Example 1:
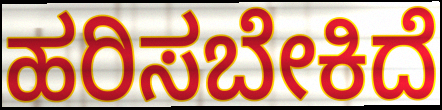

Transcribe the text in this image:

ಹರಿಸಬೇಕಿದೆ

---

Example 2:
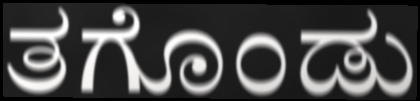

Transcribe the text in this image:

ತಗೊಂಡು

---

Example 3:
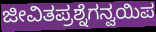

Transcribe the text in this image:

ಜೀವಿತಪ್ರಶ್ನೆಗನ್ವಯಿಪ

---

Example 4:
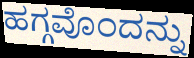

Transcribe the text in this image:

ಹಗ್ಗವೊಂದನ್ನು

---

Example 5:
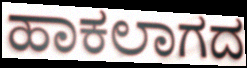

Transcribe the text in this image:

ಹಾಕಲಾಗದ